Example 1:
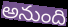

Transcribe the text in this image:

అనుంది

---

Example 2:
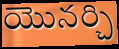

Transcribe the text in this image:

యొనర్చి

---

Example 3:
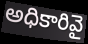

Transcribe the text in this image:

అధికారివై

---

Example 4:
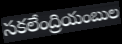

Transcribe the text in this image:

సకలేంద్రియంబుల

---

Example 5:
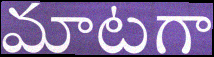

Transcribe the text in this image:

మాటగా